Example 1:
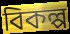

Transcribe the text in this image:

বিকল্প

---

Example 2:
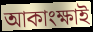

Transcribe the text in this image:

আকাংক্ষাই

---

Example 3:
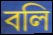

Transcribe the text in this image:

বলি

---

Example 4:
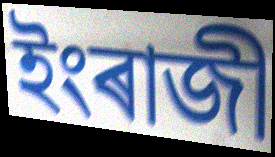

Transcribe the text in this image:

ইংৰাজী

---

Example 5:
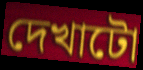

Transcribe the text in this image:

দেখাটো